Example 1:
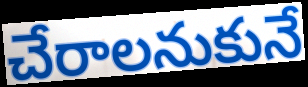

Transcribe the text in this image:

చేరాలనుకునే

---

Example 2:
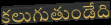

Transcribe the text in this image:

కలుగుతుండేది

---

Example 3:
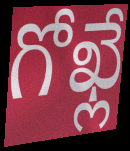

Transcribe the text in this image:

గోఖ్లే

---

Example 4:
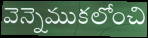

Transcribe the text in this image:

వెన్నెముకలోంచి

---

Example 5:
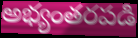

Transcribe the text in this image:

అభ్యంతరపడి